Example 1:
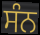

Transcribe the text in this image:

ਸੰਨ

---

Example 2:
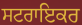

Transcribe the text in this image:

ਸਟਰਾਇਕਰ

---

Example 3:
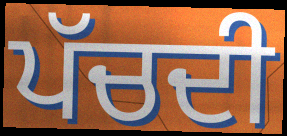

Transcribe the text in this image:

ਪੱਚਦੀ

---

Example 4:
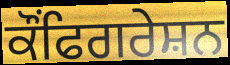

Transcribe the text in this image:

ਕੌਂਫਿਗਰੇਸ਼ਨ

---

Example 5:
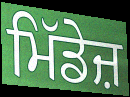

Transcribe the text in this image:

ਮਿੱਡੇਜ਼